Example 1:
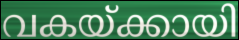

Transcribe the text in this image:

വകയ്ക്കായി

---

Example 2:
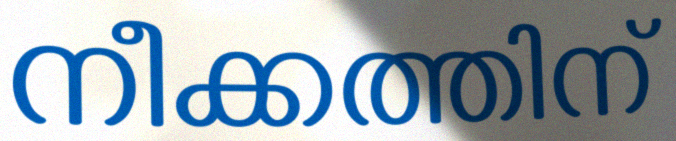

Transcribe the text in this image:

നീക്കത്തിന്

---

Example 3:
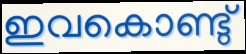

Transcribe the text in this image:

ഇവകൊണ്ടു്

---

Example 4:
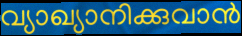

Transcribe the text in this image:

വ്യാഖ്യാനിക്കുവാൻ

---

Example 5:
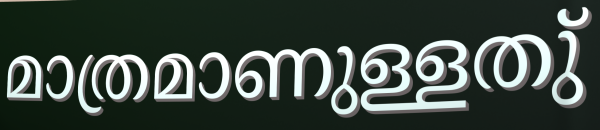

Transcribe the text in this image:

മാത്രമാണുള്ളതു്